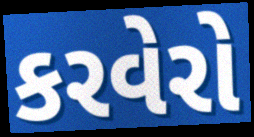
કરવેરો